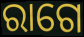
ରାଗେ